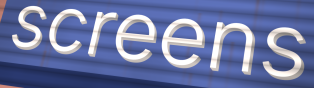
screens